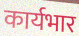
कार्यभार